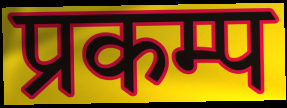
प्रकम्प